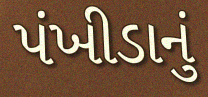
પંખીડાનું